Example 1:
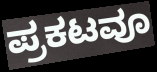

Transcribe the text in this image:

ಪ್ರಕಟವೂ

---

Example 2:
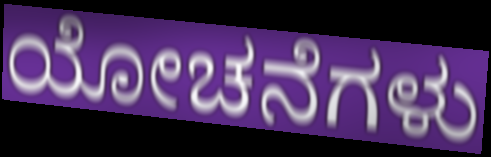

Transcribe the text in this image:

ಯೋಚನೆಗಳು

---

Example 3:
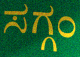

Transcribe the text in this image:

ಸಗ್ಗಂ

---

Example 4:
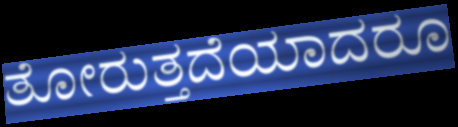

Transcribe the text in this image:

ತೋರುತ್ತದೆಯಾದರೂ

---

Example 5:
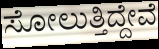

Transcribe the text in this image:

ಸೋಲುತ್ತಿದ್ದೇವೆ